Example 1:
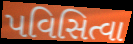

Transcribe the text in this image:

પવિસિત્વા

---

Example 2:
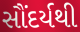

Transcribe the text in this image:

સૌંદર્યથી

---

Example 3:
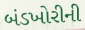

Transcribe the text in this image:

બંડખોરીની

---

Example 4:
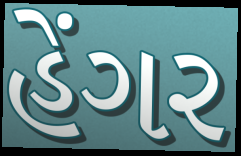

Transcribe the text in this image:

હેંગર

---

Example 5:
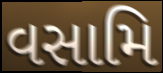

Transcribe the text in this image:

વસામિ